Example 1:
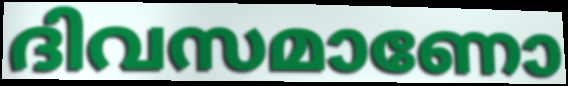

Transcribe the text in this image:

ദിവസമാണോ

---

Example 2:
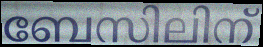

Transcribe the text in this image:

ബേസിലിന്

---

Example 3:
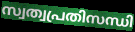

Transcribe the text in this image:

സ്വത്വപ്രതിസന്ധി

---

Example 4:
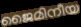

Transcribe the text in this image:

ജൈമിനീയ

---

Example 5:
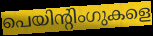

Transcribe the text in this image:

പെയിന്റിംഗുകളെ